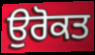
ਉਰੋਕਤ